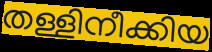
തള്ളിനീക്കിയ